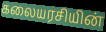
கலையரசியின்